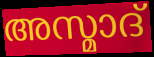
അസ്മാദ്